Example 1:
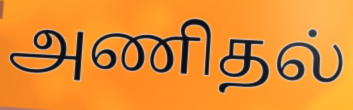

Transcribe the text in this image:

அணிதல்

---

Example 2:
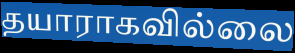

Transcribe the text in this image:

தயாராகவில்லை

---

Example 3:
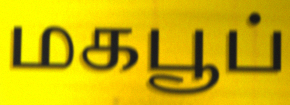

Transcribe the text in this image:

மகபூப்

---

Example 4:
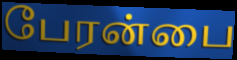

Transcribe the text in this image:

பேரன்பை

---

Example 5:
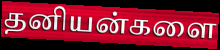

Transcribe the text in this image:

தனியன்களை